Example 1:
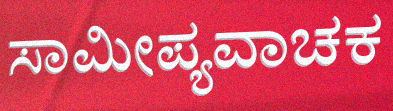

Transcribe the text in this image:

ಸಾಮೀಪ್ಯವಾಚಕ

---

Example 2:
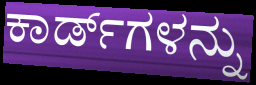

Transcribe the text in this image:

ಕಾರ್ಡ್‌ಗಳನ್ನು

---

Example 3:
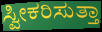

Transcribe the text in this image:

ಸ್ವೀಕರಿಸುತ್ತಾ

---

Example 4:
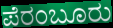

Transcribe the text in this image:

ಪೆರಂಬೂರು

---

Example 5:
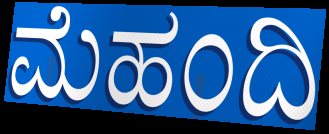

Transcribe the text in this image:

ಮೆಹಂದಿ